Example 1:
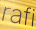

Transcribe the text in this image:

rafi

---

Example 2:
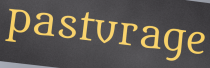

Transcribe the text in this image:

pasturage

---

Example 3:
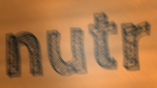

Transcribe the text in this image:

nutr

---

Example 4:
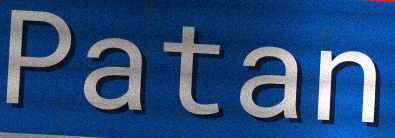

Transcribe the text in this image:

Patan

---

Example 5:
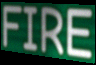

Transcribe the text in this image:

FIRE